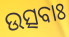
ଉତ୍ସବାଃ